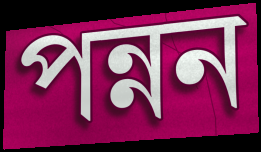
পন্নন